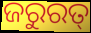
ଜରୁରତ୍